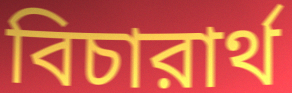
বিচারার্থ